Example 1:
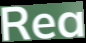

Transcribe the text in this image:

Rea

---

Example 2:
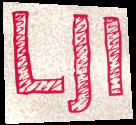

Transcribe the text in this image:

LJI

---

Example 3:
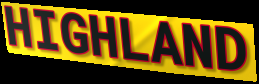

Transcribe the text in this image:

HIGHLAND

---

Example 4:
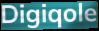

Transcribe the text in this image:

Digiqole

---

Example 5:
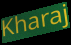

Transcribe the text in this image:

Kharaj